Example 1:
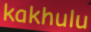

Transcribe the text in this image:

kakhulu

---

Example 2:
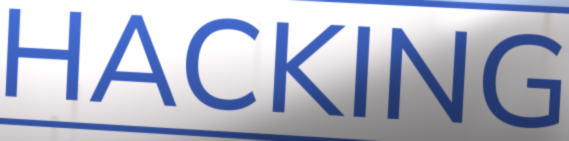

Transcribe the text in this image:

HACKING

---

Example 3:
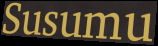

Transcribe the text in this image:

Susumu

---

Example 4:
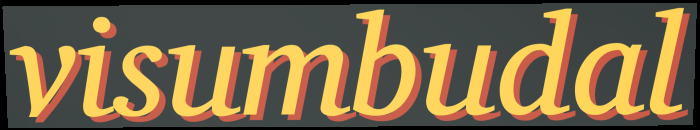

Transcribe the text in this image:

visumbudal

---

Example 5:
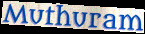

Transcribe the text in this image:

Muthuram